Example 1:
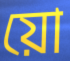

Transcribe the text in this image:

য়ো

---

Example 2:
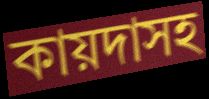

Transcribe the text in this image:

কায়দাসহ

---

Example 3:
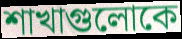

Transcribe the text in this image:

শাখাগুলোকে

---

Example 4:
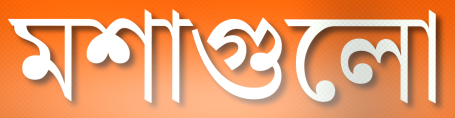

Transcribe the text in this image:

মশাগুলো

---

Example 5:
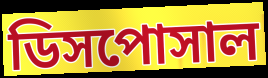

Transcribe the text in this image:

ডিসপোসাল